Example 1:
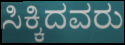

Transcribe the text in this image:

ಸಿಕ್ಕಿದವರು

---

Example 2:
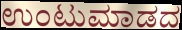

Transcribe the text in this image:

ಉಂಟುಮಾಡದ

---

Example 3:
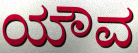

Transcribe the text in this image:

ಯೌವ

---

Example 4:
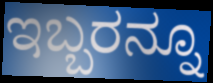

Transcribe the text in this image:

ಇಬ್ಬರನ್ನೂ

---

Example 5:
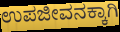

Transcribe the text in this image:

ಉಪಜೀವನಕ್ಕಾಗಿ